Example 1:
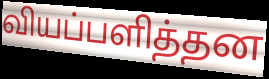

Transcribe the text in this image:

வியப்பளித்தன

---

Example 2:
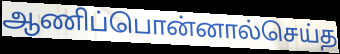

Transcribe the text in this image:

ஆணிப்பொன்னால்செய்த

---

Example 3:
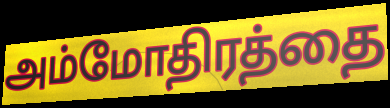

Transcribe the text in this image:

அம்மோதிரத்தை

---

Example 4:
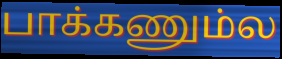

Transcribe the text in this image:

பாக்கணும்ல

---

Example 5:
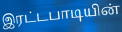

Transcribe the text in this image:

இரட்டபாடியின்